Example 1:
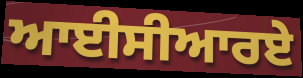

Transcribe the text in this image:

ਆਈਸੀਆਰਏ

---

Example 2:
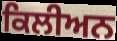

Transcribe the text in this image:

ਕਿਲੀਅਨ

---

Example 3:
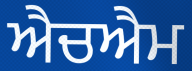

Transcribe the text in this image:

ਐਚਐਮ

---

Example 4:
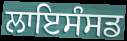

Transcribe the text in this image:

ਲਾਇਸੰਸਡ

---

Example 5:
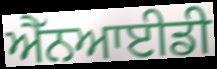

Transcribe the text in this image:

ਐੱਨਆਈਡੀ